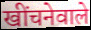
खींचनेवाले